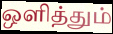
ஒளித்தும்